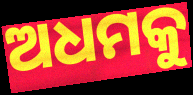
ଅଧମକୁ